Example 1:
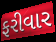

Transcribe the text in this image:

ફરીવાર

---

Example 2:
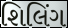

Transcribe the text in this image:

શિલિંગ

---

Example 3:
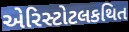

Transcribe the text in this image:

એરિસ્ટોટલકથિત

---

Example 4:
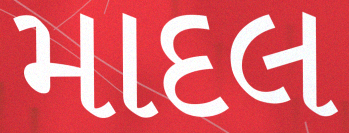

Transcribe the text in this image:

માદલ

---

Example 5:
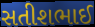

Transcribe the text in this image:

સતીશભાઈ